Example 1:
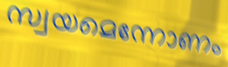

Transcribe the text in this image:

സ്വയമെന്നോണം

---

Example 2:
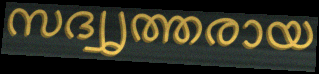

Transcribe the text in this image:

സദ്വൃത്തരായ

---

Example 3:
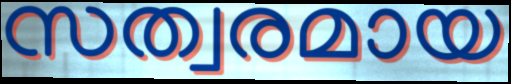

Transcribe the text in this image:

സത്വരമായ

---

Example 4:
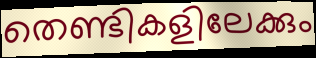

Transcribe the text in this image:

തെണ്ടികളിലേക്കും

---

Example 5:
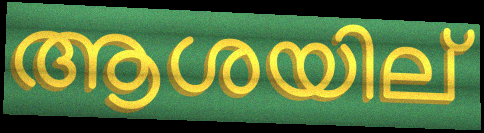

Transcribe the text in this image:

ആശയില്